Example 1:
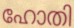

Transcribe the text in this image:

ഹോതി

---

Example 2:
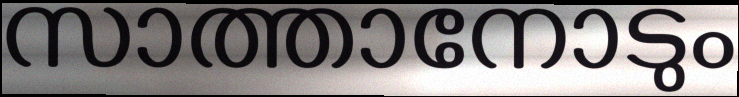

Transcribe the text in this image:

സാത്താനോടും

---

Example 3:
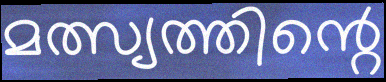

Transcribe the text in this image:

മത്സ്യത്തിന്റെ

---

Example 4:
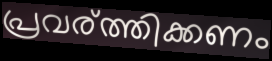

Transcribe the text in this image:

പ്രവര്ത്തിക്കണം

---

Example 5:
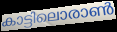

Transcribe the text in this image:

കാട്ടിലൊരാൺ